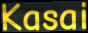
Kasai